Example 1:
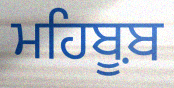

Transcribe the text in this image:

ਮਹਿਬ਼ੂਬ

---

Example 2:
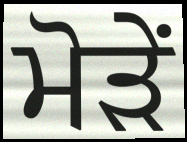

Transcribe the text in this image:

ਮੋੜੇਂ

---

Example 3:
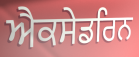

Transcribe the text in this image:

ਐਕਸੇਡਰਿਨ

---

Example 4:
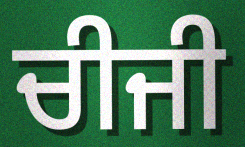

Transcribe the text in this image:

ਚੀਜੀ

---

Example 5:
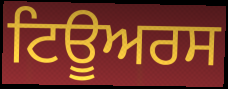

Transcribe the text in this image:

ਟਿਊਅਰਸ